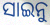
ସାଇନୁ